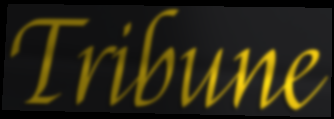
Tribune